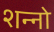
शन्नो